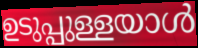
ഉടുപ്പുള്ളയാൾ